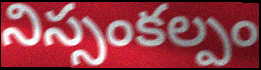
నిస్సంకల్పం